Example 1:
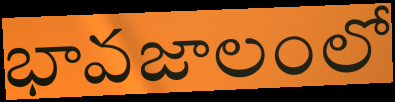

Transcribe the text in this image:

భావజాలంలో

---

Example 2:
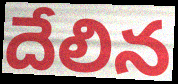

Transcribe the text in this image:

దేలిన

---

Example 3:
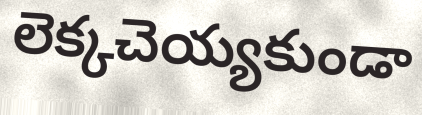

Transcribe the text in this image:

లెక్కచెయ్యకుండా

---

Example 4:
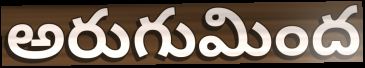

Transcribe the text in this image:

అరుగుమింద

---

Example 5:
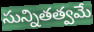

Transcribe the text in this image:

సున్నితత్వమే